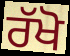
ਰੱਖੋ